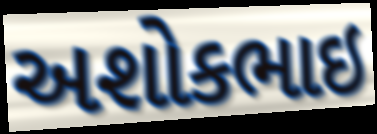
અશોકભાઇ